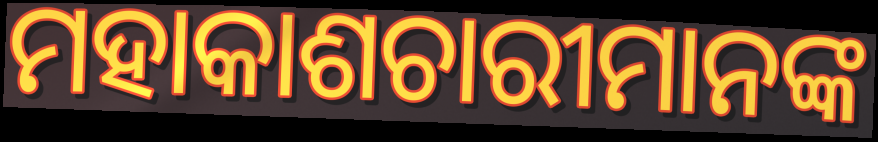
ମହାକାଶଚାରୀମାନଙ୍କ